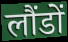
लौंडों